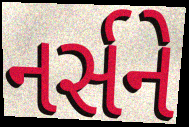
નર્સને